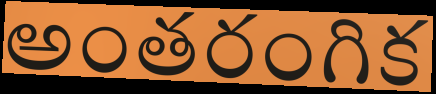
అంతరంగిక